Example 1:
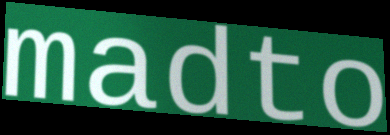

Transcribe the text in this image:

madto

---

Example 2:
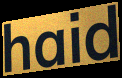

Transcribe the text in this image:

haid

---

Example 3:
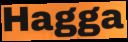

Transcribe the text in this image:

Hagga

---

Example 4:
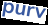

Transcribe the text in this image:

purv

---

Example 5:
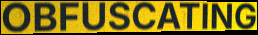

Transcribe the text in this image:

OBFUSCATING